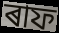
ৰাফ